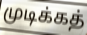
முடிக்கத்